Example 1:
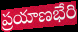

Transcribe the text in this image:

ప్రయాణభేరి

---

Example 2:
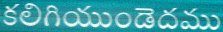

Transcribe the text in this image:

కలిగియుండెదము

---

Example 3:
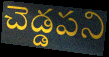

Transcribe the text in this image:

చెడ్డపని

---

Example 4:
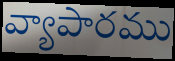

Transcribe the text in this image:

వ్యాపారము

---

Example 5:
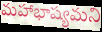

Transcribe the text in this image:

మహాభాష్యమని